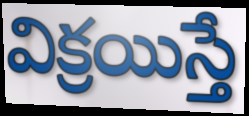
విక్రయిస్తే